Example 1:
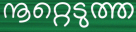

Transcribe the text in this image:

നൂറ്റെടുത്ത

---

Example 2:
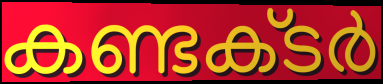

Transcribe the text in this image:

കണ്ടക്‌ടർ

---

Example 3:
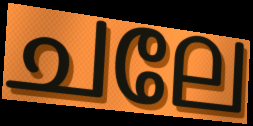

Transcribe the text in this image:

ചലേ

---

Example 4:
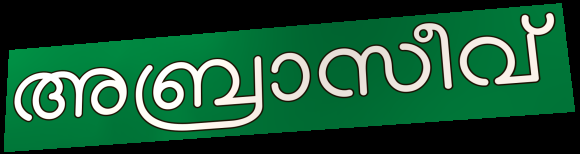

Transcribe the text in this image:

അബ്രാസീവ്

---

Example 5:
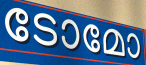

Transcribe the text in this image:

ടോമോ